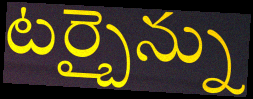
టర్బైన్ను